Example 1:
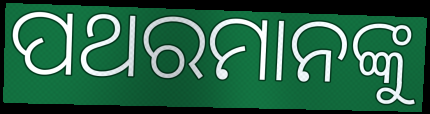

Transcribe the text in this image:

ପଥରମାନଙ୍କୁ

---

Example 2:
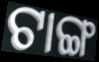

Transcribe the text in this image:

ଟାଙ୍ଗ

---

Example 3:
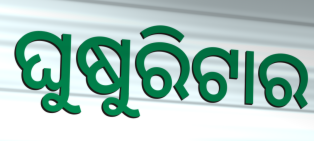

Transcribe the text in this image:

ଘୁଷୁରିଟାର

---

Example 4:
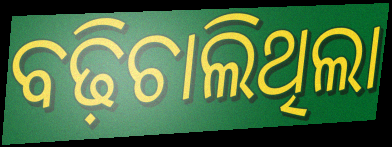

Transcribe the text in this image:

ବଢ଼ିଚାଲିଥିଲା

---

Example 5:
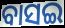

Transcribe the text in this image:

ବାସଇ